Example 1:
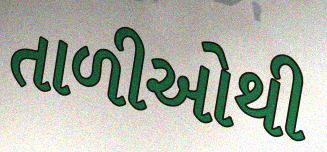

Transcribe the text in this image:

તાળીઓથી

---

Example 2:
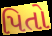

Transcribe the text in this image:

પિતો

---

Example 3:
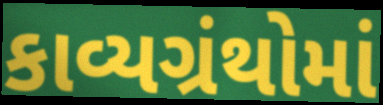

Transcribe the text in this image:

કાવ્યગ્રંથોમાં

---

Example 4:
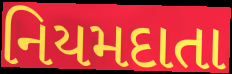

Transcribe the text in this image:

નિયમદાતા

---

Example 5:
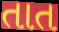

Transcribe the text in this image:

તાત